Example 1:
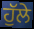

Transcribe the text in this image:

ਹੁੱਲੇ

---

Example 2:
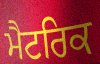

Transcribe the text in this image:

ਮੈਟਰਿਕ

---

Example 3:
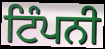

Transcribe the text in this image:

ਟਿੰਪਨੀ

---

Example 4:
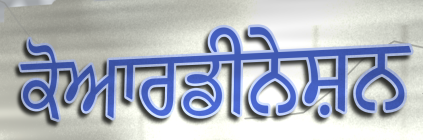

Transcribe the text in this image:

ਕੋਆਰਡੀਨੇਸ਼ਨ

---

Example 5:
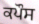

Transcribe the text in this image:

ਕਪੌਸ